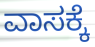
ವಾಸಕ್ಕೆ